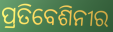
ପ୍ରତିବେଶିନୀର